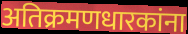
अतिक्रमणधारकांना